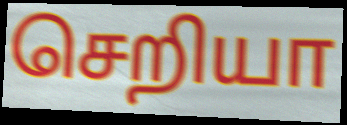
செறியா